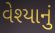
વેશ્યાનું